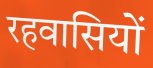
रहवासियों